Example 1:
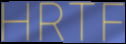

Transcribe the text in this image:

HRTF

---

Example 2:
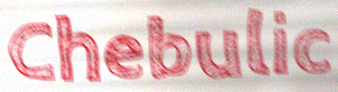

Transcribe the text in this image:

Chebulic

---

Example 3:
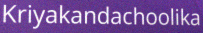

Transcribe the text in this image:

Kriyakandachoolika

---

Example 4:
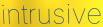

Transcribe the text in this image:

intrusive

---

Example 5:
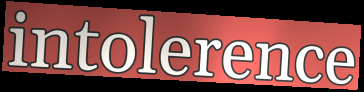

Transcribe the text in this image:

intolerence